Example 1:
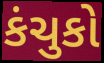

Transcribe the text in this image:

કંચુકો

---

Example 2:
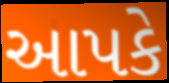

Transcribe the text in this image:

આપકે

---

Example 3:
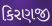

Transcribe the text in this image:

કિરણજી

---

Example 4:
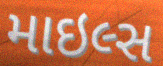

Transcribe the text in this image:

માઇલ્સ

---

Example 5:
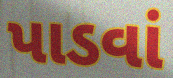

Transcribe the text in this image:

પાડવાં